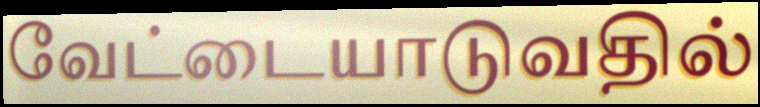
வேட்டையாடுவதில்